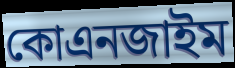
কোএনজাইম